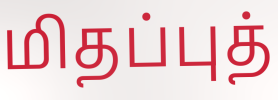
மிதப்புத்